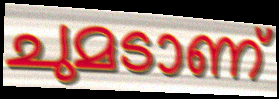
ചുമടാണ്